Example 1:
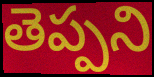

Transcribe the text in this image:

తెప్పని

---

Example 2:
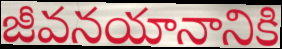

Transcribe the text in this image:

జీవనయానానికి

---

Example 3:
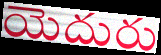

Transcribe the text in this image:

యెదురు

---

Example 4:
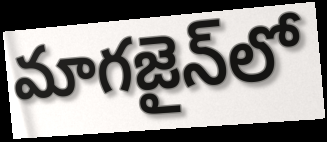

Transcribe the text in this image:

మాగజైన్‌లో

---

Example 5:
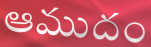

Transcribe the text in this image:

ఆముదం